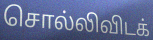
சொல்லிவிடக்